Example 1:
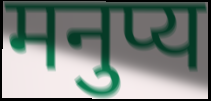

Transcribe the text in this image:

मनुप्य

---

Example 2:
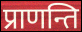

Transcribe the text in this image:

प्राणन्ति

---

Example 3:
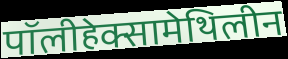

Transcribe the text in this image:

पॉलीहेक्सामेथिलीन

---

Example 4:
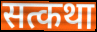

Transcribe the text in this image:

सत्कथा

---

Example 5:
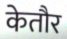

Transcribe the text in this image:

केतौर